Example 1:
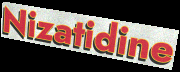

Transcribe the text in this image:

Nizatidine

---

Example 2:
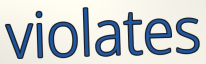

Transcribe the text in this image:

violates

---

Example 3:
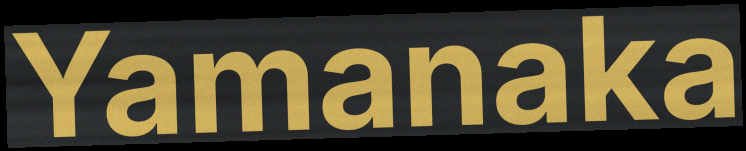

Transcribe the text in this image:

Yamanaka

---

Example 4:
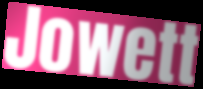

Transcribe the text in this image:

Jowett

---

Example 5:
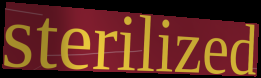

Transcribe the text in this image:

sterilized